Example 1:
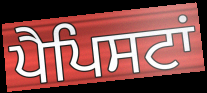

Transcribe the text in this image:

ਪੈਪਿਸਟਾਂ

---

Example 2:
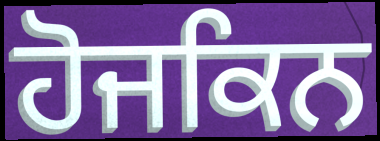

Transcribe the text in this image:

ਹੋਜਕਿਨ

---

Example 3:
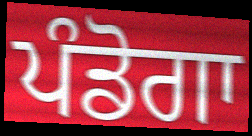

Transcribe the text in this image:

ਪੰਡੋਗਾ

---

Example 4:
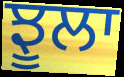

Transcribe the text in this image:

ਝੂਲਾ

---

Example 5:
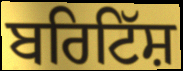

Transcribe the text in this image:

ਬਰਿਟਿੱਸ਼